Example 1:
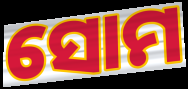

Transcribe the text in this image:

ସୋମ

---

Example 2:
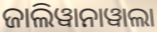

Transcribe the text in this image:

ଜାଲିୱାନାୱାଲା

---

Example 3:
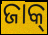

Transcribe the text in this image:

ଜାକ୍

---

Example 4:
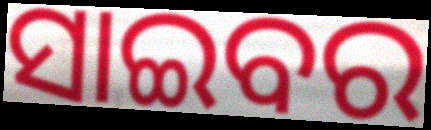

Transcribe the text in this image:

ସାଇବର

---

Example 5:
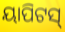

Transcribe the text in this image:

ୟାପିଟସ୍